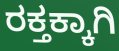
ರಕ್ತಕ್ಕಾಗಿ